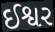
ઈશ્વર